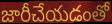
జారీచేయడంతో